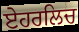
ਏਹਰਲਿਚ